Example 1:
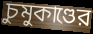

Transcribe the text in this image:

চুমুকাণ্ডের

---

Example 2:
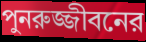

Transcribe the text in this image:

পুনরুজ্জীবনের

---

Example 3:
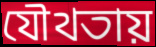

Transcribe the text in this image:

যৌথতায়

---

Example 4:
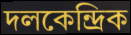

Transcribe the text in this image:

দলকেন্দ্রিক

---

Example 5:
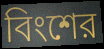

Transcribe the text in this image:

বিংশের